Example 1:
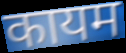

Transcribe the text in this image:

कायम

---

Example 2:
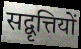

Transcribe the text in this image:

सद्वृत्तियों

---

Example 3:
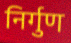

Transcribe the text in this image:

निर्गुण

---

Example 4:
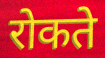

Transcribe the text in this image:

रोकते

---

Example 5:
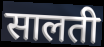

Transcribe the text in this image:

सालती